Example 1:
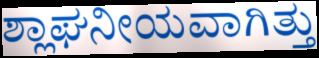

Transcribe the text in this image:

ಶ್ಲಾಘನೀಯವಾಗಿತ್ತು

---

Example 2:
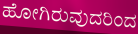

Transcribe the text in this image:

ಹೋಗಿರುವುದರಿಂದ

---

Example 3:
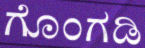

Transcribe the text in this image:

ಗೊಂಗಡಿ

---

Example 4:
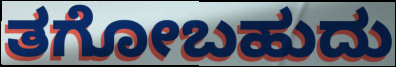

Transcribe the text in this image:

ತಗೋಬಹುದು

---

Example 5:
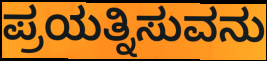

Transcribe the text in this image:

ಪ್ರಯತ್ನಿಸುವನು